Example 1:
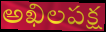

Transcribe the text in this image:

అఖిలపక్ష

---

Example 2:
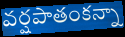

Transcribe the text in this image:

వర్షపాతంకన్నా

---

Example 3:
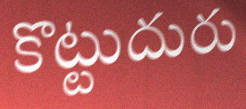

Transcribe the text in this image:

కొట్టుదురు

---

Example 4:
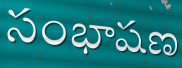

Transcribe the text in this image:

సంభాషణ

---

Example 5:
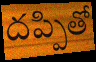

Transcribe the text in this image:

దప్పితో